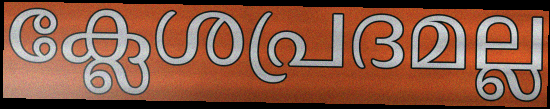
ക്ലേശപ്രദമല്ല